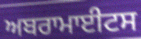
ਅਬਰਾਮਾਈਟਸ